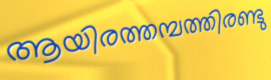
ആയിരത്തമ്പത്തിരണ്ടു